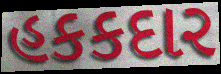
હકકદાર